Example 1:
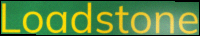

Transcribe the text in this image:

Loadstone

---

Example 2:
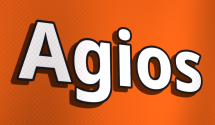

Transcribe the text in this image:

Agios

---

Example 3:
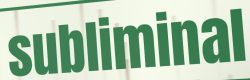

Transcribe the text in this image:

subliminal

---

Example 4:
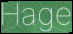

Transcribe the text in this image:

Hage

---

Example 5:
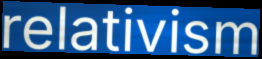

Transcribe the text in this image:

relativism